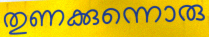
തുണക്കുന്നൊരു